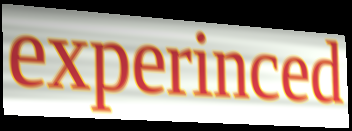
experinced